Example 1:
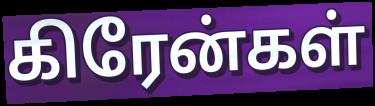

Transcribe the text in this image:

கிரேன்கள்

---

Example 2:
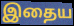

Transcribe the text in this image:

இதைய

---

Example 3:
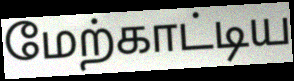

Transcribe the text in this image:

மேற்காட்டிய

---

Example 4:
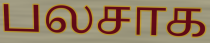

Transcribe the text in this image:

பலசாக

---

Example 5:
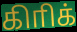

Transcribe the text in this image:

கிரிக்